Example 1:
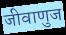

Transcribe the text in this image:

जीवाणुज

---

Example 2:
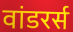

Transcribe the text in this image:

वांडरर्स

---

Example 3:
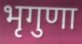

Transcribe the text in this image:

भृगुणा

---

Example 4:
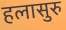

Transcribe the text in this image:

हलासुरु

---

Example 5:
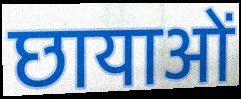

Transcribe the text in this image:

छायाओं